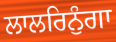
ਲਾਲਰਿਨੁੰਗਾ